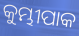
କୁମ୍ଭୀପାକ